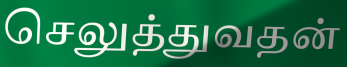
செலுத்துவதன்